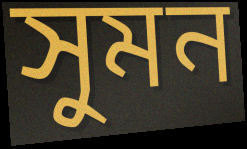
সুমন